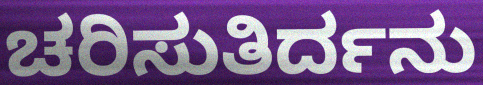
ಚರಿಸುತಿರ್ದನು